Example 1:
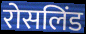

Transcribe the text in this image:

रोसलिंड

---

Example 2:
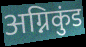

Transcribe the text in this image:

अग्निकुंड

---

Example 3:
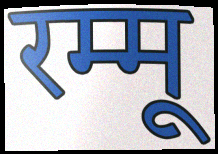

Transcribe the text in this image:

रम्मू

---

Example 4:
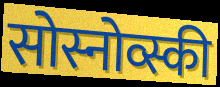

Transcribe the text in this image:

सोस्नोव्स्की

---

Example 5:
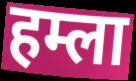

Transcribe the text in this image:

हम्ला